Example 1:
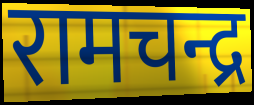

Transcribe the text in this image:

रामचन्‍द्र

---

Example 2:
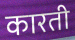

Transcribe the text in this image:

कारती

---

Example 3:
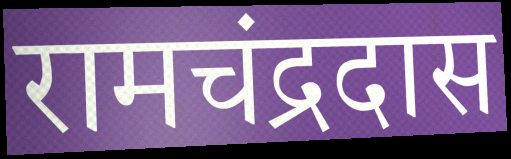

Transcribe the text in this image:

रामचंद्रदास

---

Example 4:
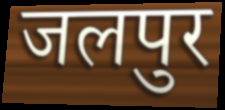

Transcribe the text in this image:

जलपुर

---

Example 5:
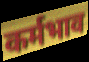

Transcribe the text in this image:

कर्मभाव